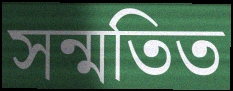
সন্মতিত